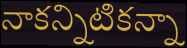
నాకన్నిటికన్నా